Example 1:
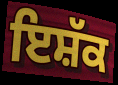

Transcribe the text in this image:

ਇਸ਼ੱਕ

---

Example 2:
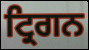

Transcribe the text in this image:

ਟ੍ਰਿਗਨ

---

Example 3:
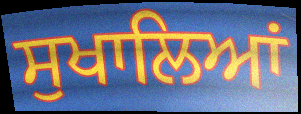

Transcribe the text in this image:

ਸੁਖਾਲਿਆਂ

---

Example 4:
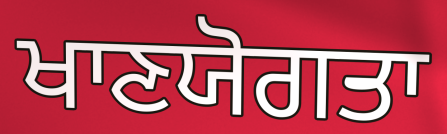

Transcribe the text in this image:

ਖਾਣਯੋਗਤਾ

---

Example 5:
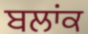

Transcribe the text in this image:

ਬਲਾਂਕ